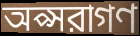
অপ্সরাগণ